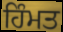
ਹਿੰਮਤ